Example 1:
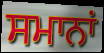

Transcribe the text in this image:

ਸਮਾਨਾਂ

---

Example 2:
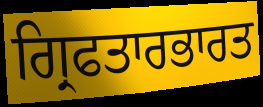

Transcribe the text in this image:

ਗ੍ਰਿਫਤਾਰਭਾਰਤ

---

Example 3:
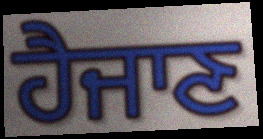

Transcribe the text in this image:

ਹੈਜਾਣ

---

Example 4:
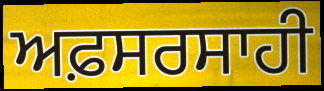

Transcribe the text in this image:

ਅਫ਼ਸਰਸਾਹੀ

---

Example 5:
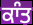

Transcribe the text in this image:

ਕਾੰਤ